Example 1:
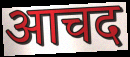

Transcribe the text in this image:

आचद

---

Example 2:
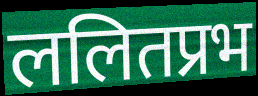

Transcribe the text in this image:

ललितप्रभ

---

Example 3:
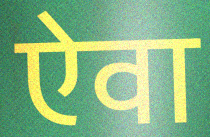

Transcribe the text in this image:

ऐवा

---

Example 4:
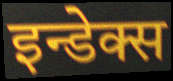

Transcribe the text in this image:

इन्डेक्स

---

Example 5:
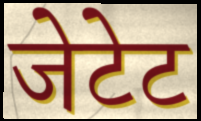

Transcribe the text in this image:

जेटेट